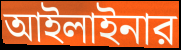
আইলাইনার